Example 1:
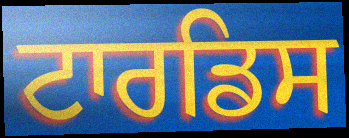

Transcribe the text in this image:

ਟਾਰਡਿਸ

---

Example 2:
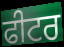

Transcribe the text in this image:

ਫੀਟਰ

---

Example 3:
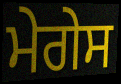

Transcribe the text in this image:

ਮੇਗੇਸ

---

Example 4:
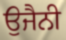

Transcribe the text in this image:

ਉਜੈਨੀ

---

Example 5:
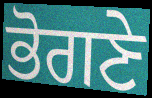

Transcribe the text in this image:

ਭੋਗਣੇ